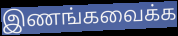
இணங்கவைக்க